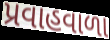
પ્રવાહવાળા